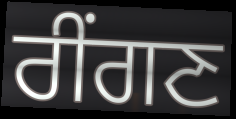
ਰੀਂਗਣ